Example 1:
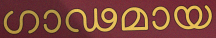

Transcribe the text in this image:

ഗാഢമായ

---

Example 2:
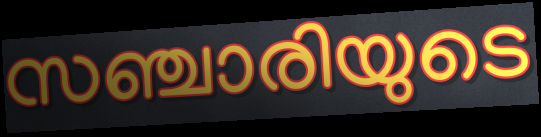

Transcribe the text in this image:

സഞ്ചാരിയുടെ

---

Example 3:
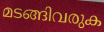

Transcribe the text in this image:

മടങ്ങിവരുക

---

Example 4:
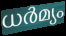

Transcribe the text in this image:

ധർമ്യം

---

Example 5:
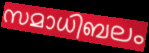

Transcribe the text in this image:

സമാധിബലം